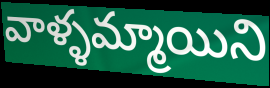
వాళ్ళమ్మాయిని